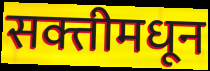
सक्तीमधून